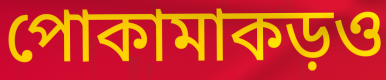
পোকামাকড়ও